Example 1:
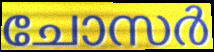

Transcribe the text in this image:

ചോസർ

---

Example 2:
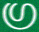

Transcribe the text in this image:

ഗ്ര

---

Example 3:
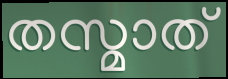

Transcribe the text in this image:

തസ്മാത്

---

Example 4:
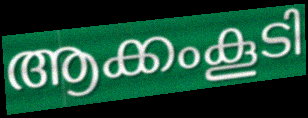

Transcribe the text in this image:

ആക്കംകൂടി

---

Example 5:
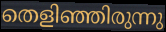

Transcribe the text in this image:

തെളിഞ്ഞിരുന്നു